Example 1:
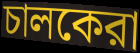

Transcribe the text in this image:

চালকেরা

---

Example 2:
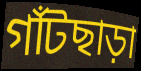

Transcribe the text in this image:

গাঁটছাড়া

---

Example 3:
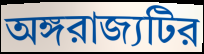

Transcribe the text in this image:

অঙ্গরাজ্যটির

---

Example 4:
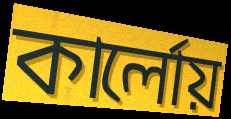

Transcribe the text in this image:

কার্লোয়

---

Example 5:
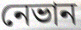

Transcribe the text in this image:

নেভান